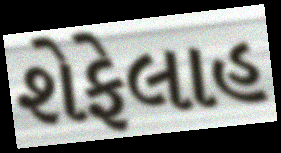
શેફેલાહ